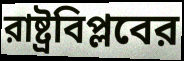
রাষ্ট্রবিপ্লবের